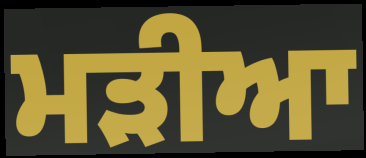
ਮੜੀਆ